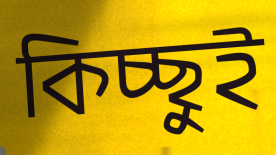
কিচ্ছুই